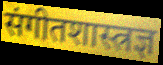
संगीतशास्त्रज्ञ